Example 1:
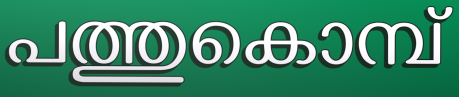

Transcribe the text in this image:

പത്തുകൊമ്പ്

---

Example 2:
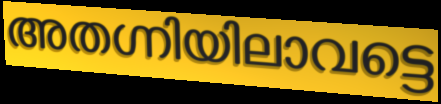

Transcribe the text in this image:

അതഗ്നിയിലാവട്ടെ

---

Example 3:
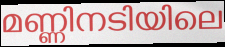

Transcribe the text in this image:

മണ്ണിനടിയിലെ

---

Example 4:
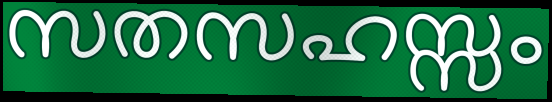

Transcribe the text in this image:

സതസഹസ്സം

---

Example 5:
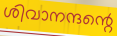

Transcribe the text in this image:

ശിവാനന്ദന്റെ